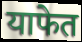
याफेत